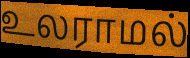
உலராமல்